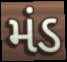
મંડ